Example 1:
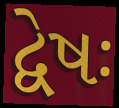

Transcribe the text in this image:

દ્વેષઃ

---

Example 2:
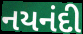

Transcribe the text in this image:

નયનંદી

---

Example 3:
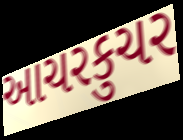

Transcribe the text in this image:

આચરકુચર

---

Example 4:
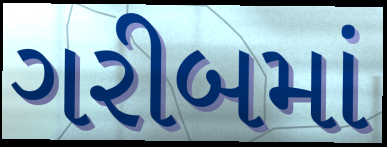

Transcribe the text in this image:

ગરીબમાં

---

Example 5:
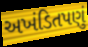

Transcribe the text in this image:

અખંડિતપણું